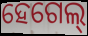
ହେଗେଲ୍